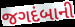
જગદંબાની